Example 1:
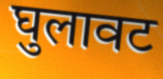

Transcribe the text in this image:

घुलावट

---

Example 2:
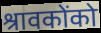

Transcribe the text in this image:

श्रावकोंको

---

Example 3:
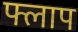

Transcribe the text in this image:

फ्लाप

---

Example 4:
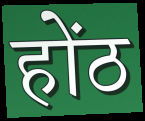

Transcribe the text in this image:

होंठ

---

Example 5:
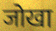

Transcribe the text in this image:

जोखा